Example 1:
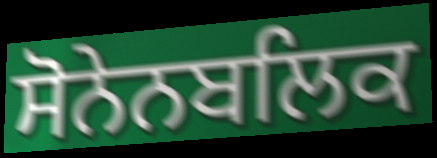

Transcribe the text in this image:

ਸੋਨੇਨਬਲਿਕ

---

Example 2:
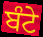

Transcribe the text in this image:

ਬੰਟੇ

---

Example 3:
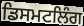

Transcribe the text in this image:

ਡਿਸਮਟਲਿੰਗ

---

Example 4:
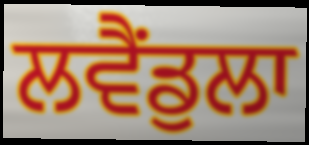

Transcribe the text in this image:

ਲਵੈਂਡੁਲਾ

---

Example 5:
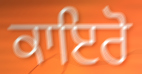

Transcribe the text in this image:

ਕਾਇਰੋ